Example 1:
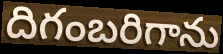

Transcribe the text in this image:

దిగంబరిగాను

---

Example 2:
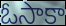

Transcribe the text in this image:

ఓసాకా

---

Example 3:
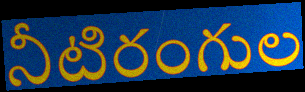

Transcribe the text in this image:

నీటిరంగుల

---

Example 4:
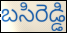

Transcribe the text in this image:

బసిరెడ్డి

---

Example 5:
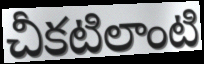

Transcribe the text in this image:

చీకటిలాంటి